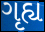
ગૃહ્ય